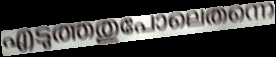
എടുത്തതുപോലെതന്നെ